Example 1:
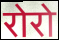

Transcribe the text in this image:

रोरो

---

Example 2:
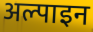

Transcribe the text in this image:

अल्पाइन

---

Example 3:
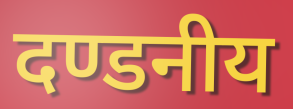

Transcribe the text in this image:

दण्डनीय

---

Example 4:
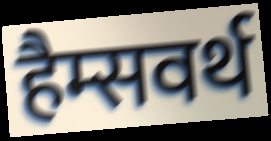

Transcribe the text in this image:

हैम्सवर्थ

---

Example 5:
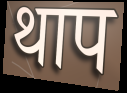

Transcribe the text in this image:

थाप